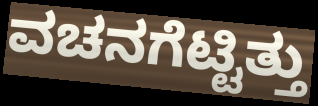
ವಚನಗೆಟ್ಟಿತ್ತು